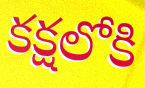
కక్షలోకి